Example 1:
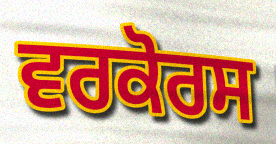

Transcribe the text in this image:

ਵਰਕੋਰਸ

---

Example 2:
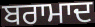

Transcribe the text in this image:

ਬਰਾਮਾਦ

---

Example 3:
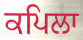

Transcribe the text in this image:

ਕਪਿਲਾ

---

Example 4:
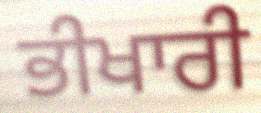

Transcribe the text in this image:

ਭੀਖਾਰੀ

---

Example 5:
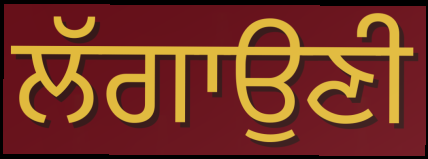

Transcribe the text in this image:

ਲੱਗਾਉਣੀ